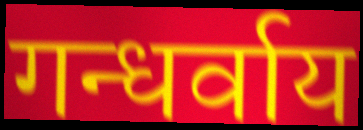
गन्धर्वाय